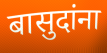
बासुदांना